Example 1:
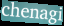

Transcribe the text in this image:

chenagi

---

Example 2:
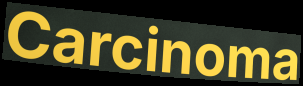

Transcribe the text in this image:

Carcinoma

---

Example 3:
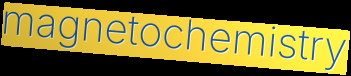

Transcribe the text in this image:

magnetochemistry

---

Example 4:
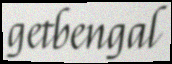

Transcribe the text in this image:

getbengal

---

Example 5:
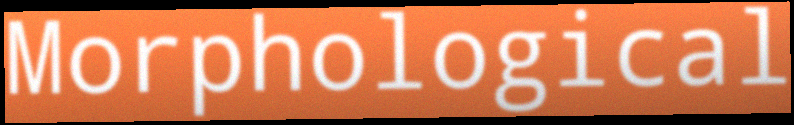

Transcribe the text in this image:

Morphological